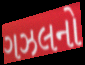
ગઝલનો